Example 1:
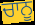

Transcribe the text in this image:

ਚਾਨੂ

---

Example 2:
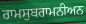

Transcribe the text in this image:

ਰਾਮਸੁਬਰਾਮਨੀਅਨ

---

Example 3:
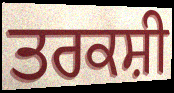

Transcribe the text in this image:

ਤਰਕਸ਼ੀ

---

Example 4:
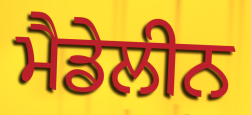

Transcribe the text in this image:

ਮੈਡੇਲੀਨ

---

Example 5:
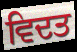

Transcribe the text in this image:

ਵਿਦਤ